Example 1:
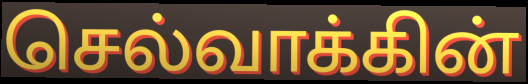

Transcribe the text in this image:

செல்வாக்கின்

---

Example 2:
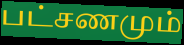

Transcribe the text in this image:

பட்சணமும்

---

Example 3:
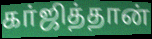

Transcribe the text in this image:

கர்ஜித்தான்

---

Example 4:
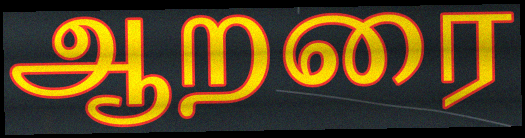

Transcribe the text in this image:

ஆறரை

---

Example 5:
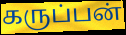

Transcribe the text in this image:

கருப்பன்